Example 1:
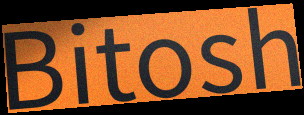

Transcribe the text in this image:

Bitosh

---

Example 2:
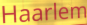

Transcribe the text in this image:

Haarlem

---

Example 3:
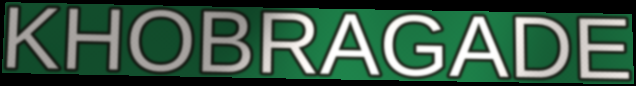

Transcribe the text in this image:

KHOBRAGADE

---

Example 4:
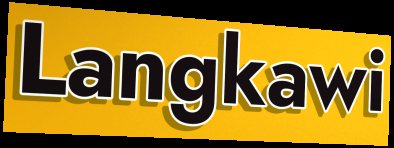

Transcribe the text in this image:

Langkawi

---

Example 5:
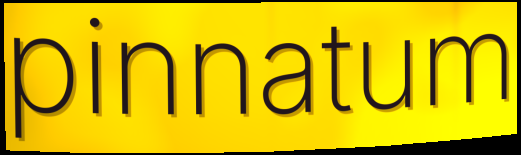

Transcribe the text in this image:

pinnatum